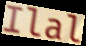
Ilal